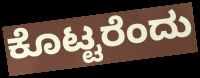
ಕೊಟ್ಟರೆಂದು